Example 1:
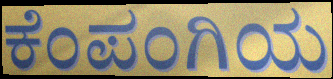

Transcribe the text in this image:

ಕೆಂಪಂಗಿಯ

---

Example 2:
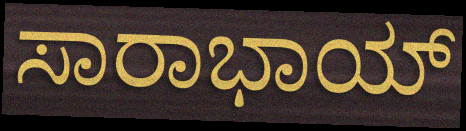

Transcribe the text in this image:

ಸಾರಾಭಾಯ್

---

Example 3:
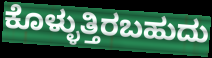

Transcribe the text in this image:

ಕೊಳ್ಳುತ್ತಿರಬಹುದು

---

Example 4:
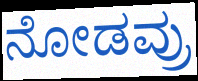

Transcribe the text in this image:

ನೋಡವ್ರು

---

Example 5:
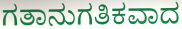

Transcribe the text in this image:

ಗತಾನುಗತಿಕವಾದ